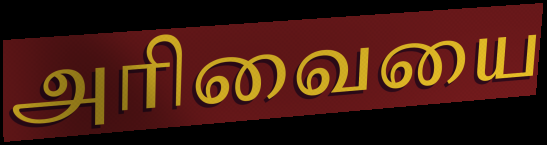
அரிவையை